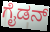
ಗೈಡನ್